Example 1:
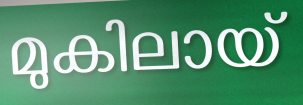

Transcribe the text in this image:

മുകിലായ്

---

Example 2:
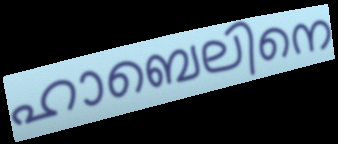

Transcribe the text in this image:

ഹാബെലിനെ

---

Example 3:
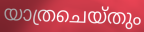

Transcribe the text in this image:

യാത്രചെയ്തും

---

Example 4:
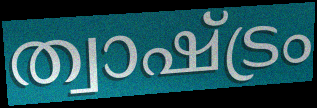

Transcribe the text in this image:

ത്വാഷ്ട്രം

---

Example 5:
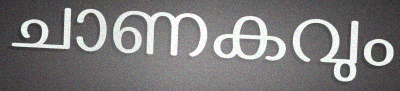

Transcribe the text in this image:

ചാണകവും